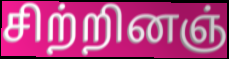
சிற்றினஞ்